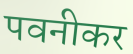
पवनीकर